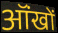
ऑंखों